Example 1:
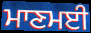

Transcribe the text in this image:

ਮਾਣਮਈ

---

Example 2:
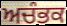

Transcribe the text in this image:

ਅਚੰਭਕ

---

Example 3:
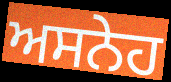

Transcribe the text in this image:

ਅਸਨੇਹ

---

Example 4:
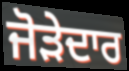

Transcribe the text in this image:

ਜੋੜੇਦਾਰ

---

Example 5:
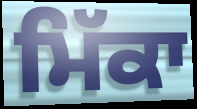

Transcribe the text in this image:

ਮਿੱਕਾ